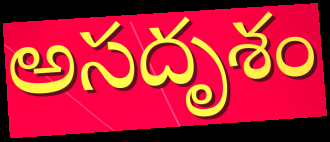
అసదృశం